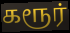
கரூர்